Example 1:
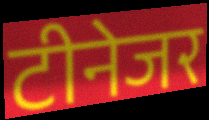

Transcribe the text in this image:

टीनेजर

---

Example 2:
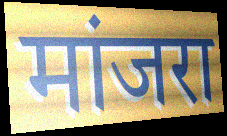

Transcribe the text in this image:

मांजरा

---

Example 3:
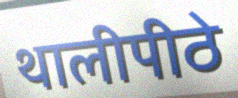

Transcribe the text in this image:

थालीपीठे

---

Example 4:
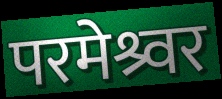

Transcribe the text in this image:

परमेश्र्वर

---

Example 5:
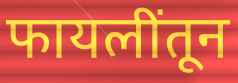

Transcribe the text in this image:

फायलींतून